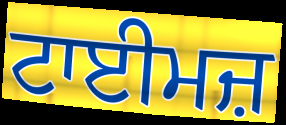
ਟਾਈਮਜ਼